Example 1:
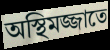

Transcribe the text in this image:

অস্থিমজ্জাতে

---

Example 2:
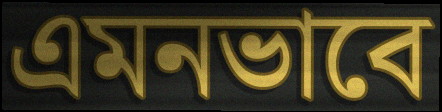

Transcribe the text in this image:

এমনভাবে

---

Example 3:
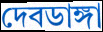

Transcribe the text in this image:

দেবডাঙ্গা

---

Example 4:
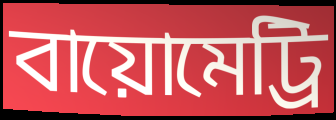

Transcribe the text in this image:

বায়োমেট্রি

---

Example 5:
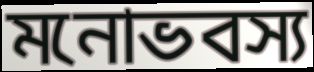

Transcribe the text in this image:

মনোভবস্য